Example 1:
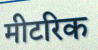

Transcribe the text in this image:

मीटरिक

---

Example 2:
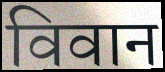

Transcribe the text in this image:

विवान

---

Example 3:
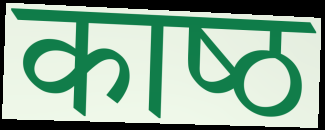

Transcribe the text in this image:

काष्‍ठ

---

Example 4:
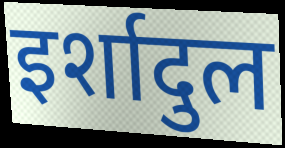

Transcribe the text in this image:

इर्शादुल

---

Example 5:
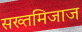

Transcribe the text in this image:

सख्तमिजाज